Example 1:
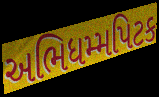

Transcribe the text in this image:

અભિધમ્મપિટક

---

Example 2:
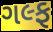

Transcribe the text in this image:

ગલ્ફ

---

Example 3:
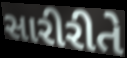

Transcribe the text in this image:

સારીરીતે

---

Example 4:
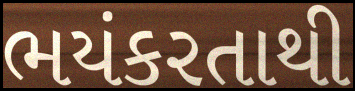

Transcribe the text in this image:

ભયંકરતાથી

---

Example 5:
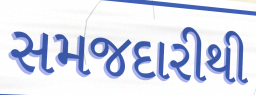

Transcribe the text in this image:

સમજદારીથી